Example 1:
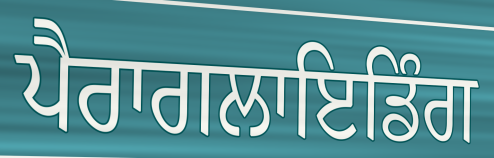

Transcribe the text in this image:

ਪੈਰਾਗਲਾਇਡਿੰਗ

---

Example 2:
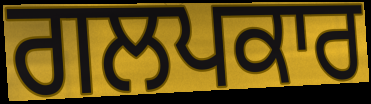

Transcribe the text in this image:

ਗਲਪਕਾਰ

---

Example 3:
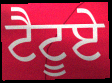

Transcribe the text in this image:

ਟੈਟੂਏ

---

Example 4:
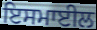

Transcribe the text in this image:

ਇਸਮਾਈਲ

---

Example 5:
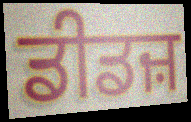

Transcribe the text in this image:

ਡੀਡਜ਼